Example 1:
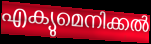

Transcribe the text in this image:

എക്യുമെനിക്കൽ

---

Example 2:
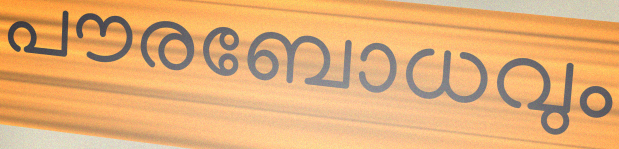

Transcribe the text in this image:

പൗരബോധവും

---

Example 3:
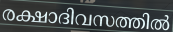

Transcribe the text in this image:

രക്ഷാദിവസത്തിൽ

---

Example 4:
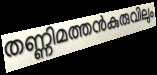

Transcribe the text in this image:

തണ്ണിമത്തൻകുരുവിലും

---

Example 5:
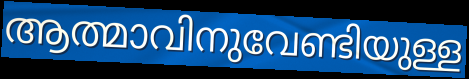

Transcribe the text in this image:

ആത്മാവിനുവേണ്ടിയുള്ള